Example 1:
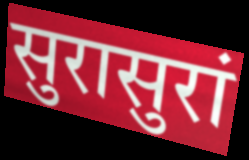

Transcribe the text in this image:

सुरासुरां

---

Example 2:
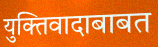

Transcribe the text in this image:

युक्तिवादाबाबत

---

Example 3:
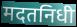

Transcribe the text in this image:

मदतनिधी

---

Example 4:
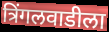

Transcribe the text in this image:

त्रिंगलवाडीला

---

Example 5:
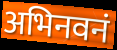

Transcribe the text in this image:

अभिनवनं